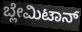
ಬ್ಲೇಮಿಟಾನ್